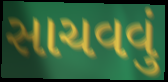
સાચવવું